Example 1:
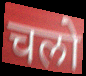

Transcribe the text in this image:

चलो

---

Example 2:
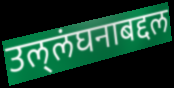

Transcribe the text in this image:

उल्लंघनाबद्दल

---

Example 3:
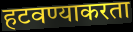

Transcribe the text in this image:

हटवण्याकरता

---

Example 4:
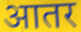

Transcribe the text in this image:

आतर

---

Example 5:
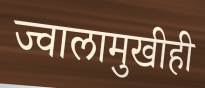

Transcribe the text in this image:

ज्वालामुखीही